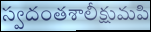
స్వదంతశాలీక్షుమపి